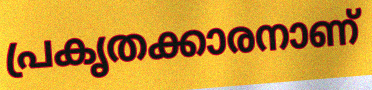
പ്രകൃതക്കാരനാണ്